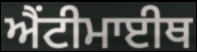
ਐਂਟੀਮਾਈਥ